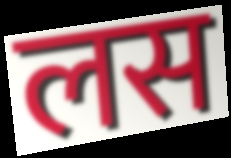
लस